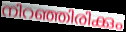
നിറഞ്ഞിരിക്കും